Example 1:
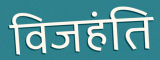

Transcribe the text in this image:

विजहंति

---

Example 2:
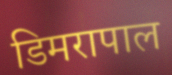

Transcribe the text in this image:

डिमरापाल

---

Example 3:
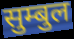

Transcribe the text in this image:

सुम्बुल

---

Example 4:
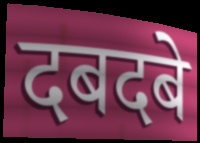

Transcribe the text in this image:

दबदबे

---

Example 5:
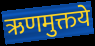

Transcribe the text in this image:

ऋणमुक्तये